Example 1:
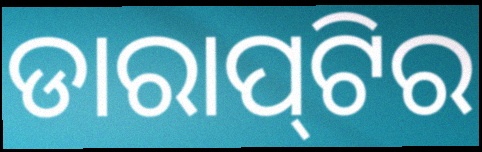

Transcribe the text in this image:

ଡାରାପ୍‌ଟିର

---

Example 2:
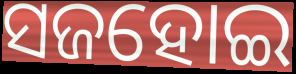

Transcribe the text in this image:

ସଜହୋଇ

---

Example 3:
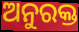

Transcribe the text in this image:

ଅନୁରକ୍ତ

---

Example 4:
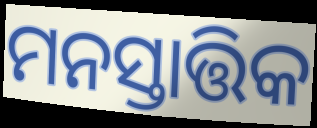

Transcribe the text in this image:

ମନସ୍ତାତ୍ତିକ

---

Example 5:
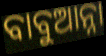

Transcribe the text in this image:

ବାବୁଆନ୍ନା